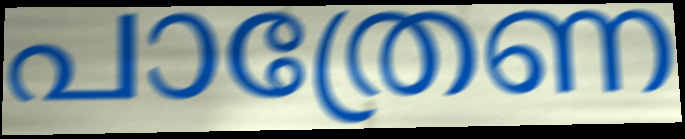
പാത്രേണ